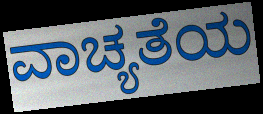
ವಾಚ್ಯತೆಯ